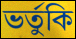
ভর্তুকি